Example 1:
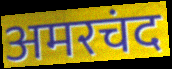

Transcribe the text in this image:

अमरचंद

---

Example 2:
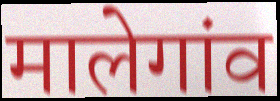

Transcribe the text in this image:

मालेगांव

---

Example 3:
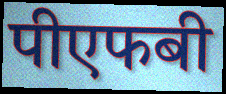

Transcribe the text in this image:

पीएफबी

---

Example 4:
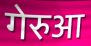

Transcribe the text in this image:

गेरुआ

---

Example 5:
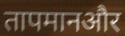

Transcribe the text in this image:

तापमानऔर